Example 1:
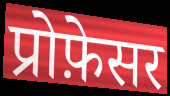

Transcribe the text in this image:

प्रोफ़ेसर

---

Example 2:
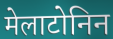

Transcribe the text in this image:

मेलाटोनिन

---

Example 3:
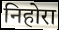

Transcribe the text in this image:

निहोरा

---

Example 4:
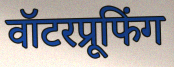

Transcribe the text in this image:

वॉटरप्रूफिंग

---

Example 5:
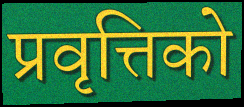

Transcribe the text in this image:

प्रवृत्तिको